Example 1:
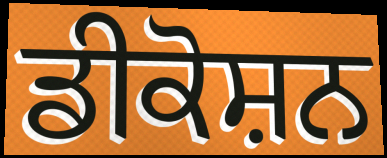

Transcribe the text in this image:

ਡੀਕੋਸ਼ਨ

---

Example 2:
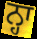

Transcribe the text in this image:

ਨ੍ਹਾ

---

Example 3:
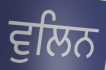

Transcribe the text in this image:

ਵੁਲਿਨ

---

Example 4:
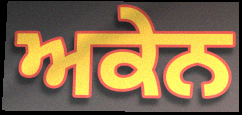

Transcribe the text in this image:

ਅਕੇਨ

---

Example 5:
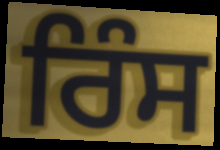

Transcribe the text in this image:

ਰਿੰਸ